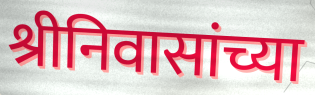
श्रीनिवासांच्या